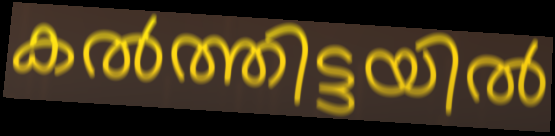
കൽത്തിട്ടയിൽ